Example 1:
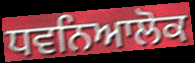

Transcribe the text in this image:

ਧਵਨਿਆਲੋਕ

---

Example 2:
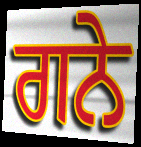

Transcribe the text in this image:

ਗਨੇ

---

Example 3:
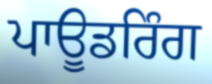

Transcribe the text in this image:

ਪਾਊਡਰਿੰਗ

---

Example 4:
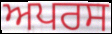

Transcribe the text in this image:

ਅਪਰਸ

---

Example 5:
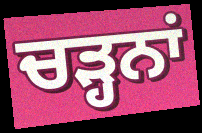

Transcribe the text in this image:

ਚੜ੍ਹਨਾਂ